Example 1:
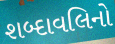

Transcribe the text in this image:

શબ્દાવલિનો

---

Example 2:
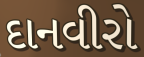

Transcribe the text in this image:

દાનવીરો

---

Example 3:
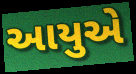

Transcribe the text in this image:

આયુએ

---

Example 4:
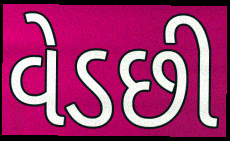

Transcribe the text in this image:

વેડછી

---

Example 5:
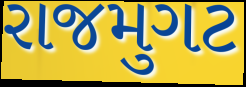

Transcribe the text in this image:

રાજમુગટ